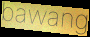
bawang